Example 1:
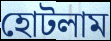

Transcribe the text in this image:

হোটলাম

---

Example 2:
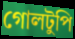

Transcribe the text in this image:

গোলটুপি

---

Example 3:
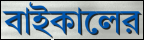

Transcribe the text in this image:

বাইকালের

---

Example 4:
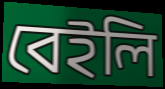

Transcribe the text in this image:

বেইলি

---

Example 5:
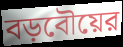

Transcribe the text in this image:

বড়বৌয়ের